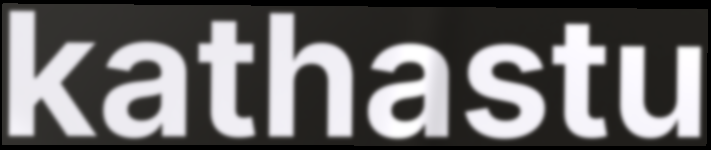
kathastu